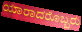
ಯಾರಾದರೊಬ್ಬರು